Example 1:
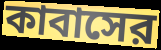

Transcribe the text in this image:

কাবাসের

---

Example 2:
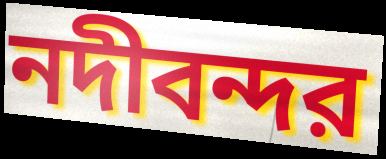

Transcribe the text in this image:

নদীবন্দর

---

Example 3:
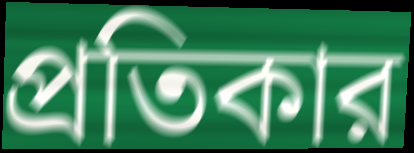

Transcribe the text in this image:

প্রতিকার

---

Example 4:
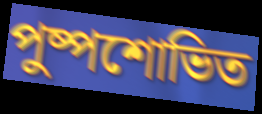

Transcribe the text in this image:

পুষ্পশোভিত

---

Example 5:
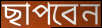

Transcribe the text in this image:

ছাপবেন